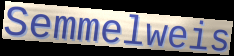
Semmelweis